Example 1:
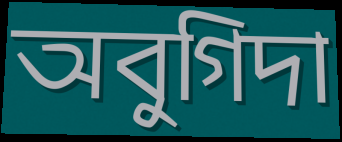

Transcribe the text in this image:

অবুগিদা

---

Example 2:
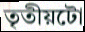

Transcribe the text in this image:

তৃতীয়টো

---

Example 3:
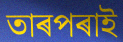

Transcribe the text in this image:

তাৰপৰাই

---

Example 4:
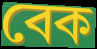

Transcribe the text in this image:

বেক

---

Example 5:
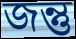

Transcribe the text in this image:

জন্তু